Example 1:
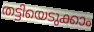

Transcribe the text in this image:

തട്ടിയെടുക്കാം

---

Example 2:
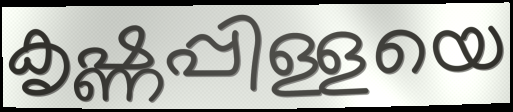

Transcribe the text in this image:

കൃഷ്ണപ്പിള്ളയെ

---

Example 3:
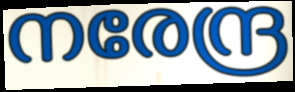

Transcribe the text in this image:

നരേന്ദ്ര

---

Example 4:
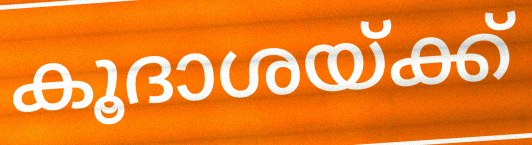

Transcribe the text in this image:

കൂദാശയ്ക്ക്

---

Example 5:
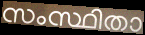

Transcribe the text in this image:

സംസ്ഥിതാ